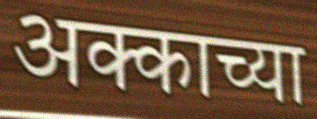
अक्काच्या